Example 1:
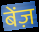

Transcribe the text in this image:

बेंज़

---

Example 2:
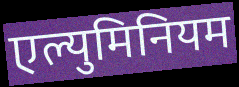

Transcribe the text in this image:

एल्युमिनियम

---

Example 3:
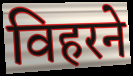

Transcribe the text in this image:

विहरने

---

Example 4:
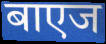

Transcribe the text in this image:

बाएज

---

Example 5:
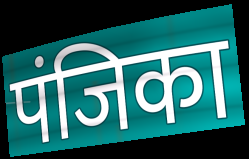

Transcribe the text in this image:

पंजिका